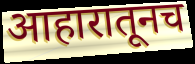
आहारातूनच